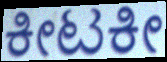
ಕೀಟಕೀ